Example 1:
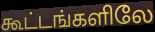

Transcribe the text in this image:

கூட்டங்களிலே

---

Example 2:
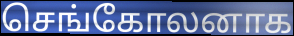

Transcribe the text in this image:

செங்கோலனாக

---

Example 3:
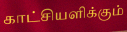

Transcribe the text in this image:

காட்சியளிக்கும்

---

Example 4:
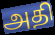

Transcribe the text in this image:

அதி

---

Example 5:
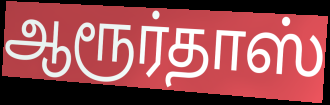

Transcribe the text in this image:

ஆரூர்தாஸ்